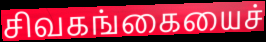
சிவகங்கையைச்